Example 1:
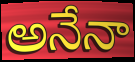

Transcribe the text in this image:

అనేనా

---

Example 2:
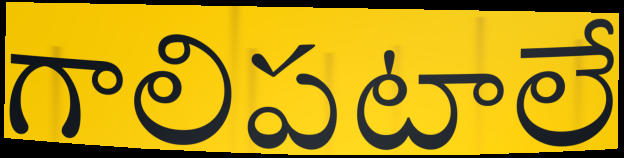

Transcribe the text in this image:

గాలిపటాలే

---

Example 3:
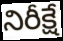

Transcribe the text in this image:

నిరీక్షే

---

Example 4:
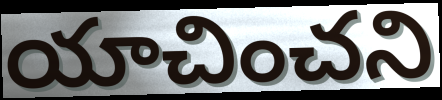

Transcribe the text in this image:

యాచించని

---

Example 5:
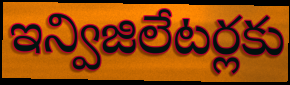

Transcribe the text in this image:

ఇన్విజిలేటర్లకు